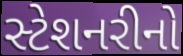
સ્ટેશનરીનો